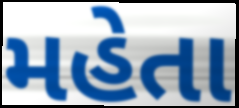
મહેતા